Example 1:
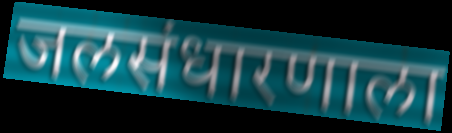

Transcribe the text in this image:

जलसंधारणाला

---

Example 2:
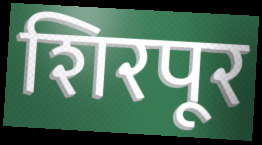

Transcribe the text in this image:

शिरपूर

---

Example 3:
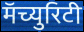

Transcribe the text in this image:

मॅच्युरिटी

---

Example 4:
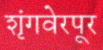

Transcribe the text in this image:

शृंगवेरपूर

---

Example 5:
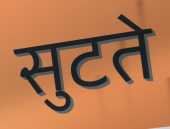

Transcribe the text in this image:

सुटते